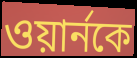
ওয়ার্নকে